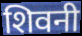
शिवनी